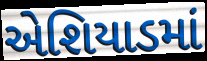
એશિયાડમાં